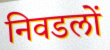
निवडलों